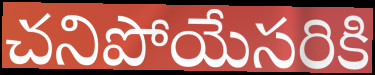
చనిపోయేసరికి